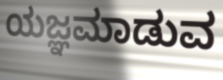
ಯಜ್ಞಮಾಡುವ